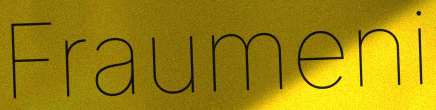
Fraumeni